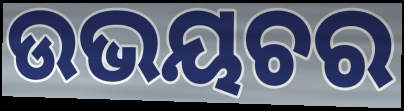
ଉଭୟଚର